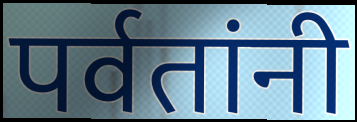
पर्वतांनी